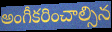
అంగీకరించాల్సిన